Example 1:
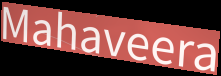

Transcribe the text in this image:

Mahaveera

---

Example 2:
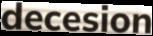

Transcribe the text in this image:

decesion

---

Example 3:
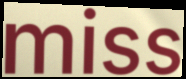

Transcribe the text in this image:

miss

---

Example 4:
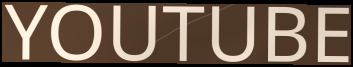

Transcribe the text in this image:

YOUTUBE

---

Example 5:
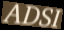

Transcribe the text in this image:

ADSI